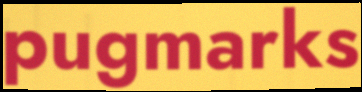
pugmarks